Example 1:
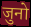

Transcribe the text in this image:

जुनो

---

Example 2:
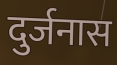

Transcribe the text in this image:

दुर्जनास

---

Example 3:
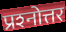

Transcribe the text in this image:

प्रश्‍नोत्तर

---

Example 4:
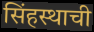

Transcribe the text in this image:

सिंहस्थाची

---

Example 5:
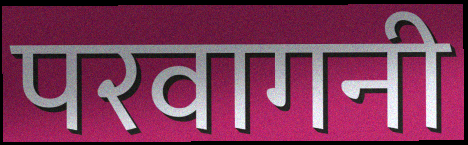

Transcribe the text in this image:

परवागनी